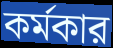
কর্মকার